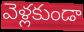
వెళ్లకుండా